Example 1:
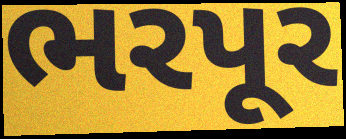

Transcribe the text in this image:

ભરપૂર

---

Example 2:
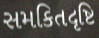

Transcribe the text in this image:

સમકિતદૃષ્ટિ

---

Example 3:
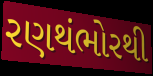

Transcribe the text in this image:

રણથંભોરથી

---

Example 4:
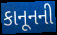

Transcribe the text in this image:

કાનૂનની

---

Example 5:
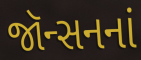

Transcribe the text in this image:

જૉન્સનનાં